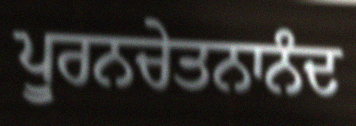
ਪੂਰਨਚੇਤਨਾਨੰਦ